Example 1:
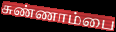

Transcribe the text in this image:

சுண்ணாம்பை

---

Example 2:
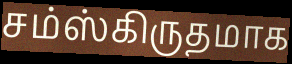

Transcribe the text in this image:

சம்ஸ்கிருதமாக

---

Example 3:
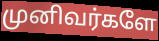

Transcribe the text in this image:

முனிவர்களே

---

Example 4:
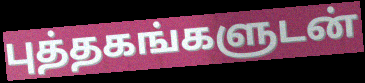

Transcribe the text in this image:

புத்தகங்களுடன்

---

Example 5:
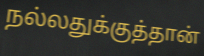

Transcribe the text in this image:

நல்லதுக்குத்தான்